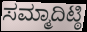
ಸಮ್ಮಾದಿಟ್ಠಿ